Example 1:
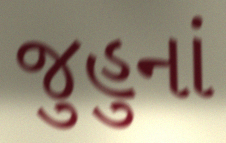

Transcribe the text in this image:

જુહુનાં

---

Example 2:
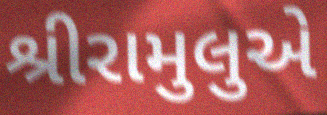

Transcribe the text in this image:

શ્રીરામુલુએ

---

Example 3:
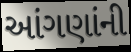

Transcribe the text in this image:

આંગણાંની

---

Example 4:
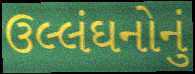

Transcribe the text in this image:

ઉલ્લંઘનોનું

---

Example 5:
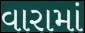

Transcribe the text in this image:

વારામાં